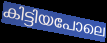
കിട്ടിയപോലെ